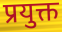
प्रयुक्त